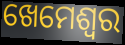
ଖେମେଶ୍ଵର